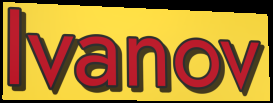
Ivanov